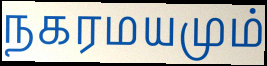
நகரமயமும்